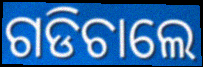
ଗଡିଚାଲେ